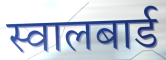
स्वालबार्ड